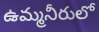
ఉమ్మనీరులో